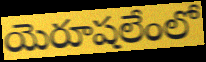
యెరూషలేంలో